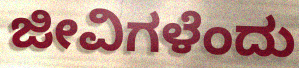
ಜೀವಿಗಳೆಂದು